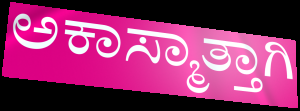
ಅಕಾಸ್ಮಾತ್ತಾಗಿ